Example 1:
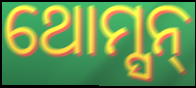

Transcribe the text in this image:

ଥୋମ୍ସନ୍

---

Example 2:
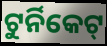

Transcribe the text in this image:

ଟୁର୍ନିକେଟ୍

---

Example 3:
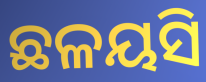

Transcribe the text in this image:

ଛଳୟସି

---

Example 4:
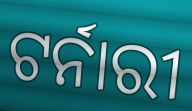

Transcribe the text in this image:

ଟର୍ନାରୀ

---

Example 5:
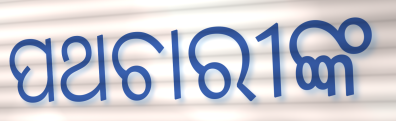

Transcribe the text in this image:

ପଥଚାରୀଙ୍କ